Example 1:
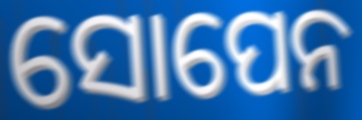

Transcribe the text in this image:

ସୋପେନ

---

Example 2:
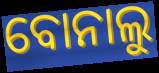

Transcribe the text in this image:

ବୋନାଲୁ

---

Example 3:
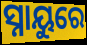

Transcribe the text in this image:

ସ୍ନାୟୁରେ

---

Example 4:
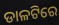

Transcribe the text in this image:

ଡାଳଟିରେ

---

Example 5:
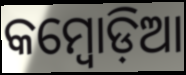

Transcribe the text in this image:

କମ୍ୱୋଡ଼ିଆ